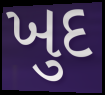
ખુદ